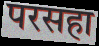
परसहा